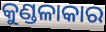
କୁଣ୍ଡଳାକାର